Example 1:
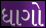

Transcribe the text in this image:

ધાગો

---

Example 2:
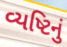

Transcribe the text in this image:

વ્યષ્ટિનું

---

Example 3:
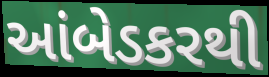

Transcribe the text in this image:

આંબેડકરથી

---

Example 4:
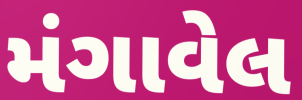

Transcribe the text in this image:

મંગાવેલ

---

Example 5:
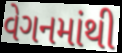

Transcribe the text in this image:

વેગનમાંથી